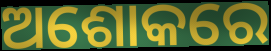
ଅଶୋକରେ